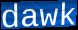
dawk